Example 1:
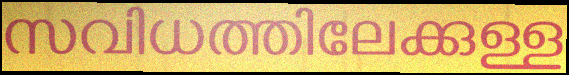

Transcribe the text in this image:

സവിധത്തിലേക്കുള്ള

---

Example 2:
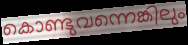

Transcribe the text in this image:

കൊണ്ടുവന്നെങ്കിലും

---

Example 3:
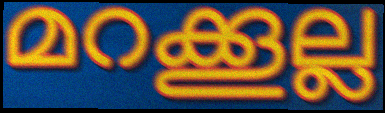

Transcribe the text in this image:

മറക്കൂല്ല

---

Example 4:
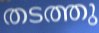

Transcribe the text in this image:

തടത്തു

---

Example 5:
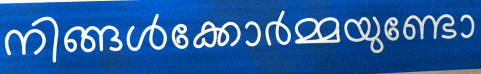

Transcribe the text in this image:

നിങ്ങൾക്കോർമ്മയുണ്ടോ